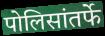
पोलिसांतर्फे